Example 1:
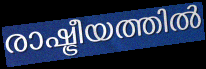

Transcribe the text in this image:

രാഷ്ട്രീയത്തിൽ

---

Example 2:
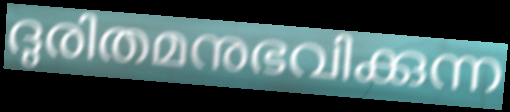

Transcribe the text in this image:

ദുരിതമനുഭവിക്കുന്ന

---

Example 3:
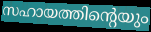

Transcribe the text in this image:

സഹായത്തിന്റെയും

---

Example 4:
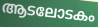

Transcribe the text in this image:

ആടലോടകം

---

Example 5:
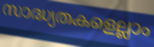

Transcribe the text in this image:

സാദ്ധ്യതകളെല്ലാം